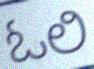
ಓಲಿ